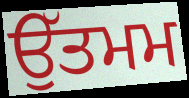
ਉੱਤਮਮ